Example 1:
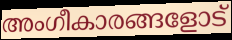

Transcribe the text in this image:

അംഗീകാരങ്ങളോട്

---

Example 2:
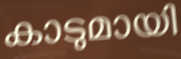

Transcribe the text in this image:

കാടുമായി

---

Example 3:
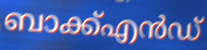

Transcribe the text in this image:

ബാക്ക്എൻഡ്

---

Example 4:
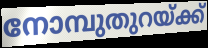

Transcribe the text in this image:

നോമ്പുതുറയ്ക്ക്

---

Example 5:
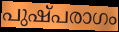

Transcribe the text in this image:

പുഷ്പരാഗം